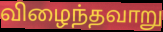
விழைந்தவாறு